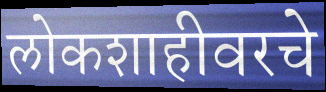
लोकशाहीवरचे